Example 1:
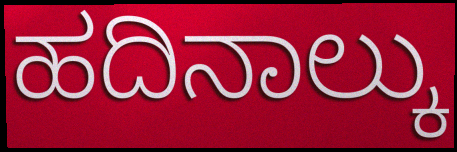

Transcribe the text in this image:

ಹದಿನಾಲ್ಕು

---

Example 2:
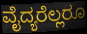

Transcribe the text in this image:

ವೈದ್ಯರೆಲ್ಲರೂ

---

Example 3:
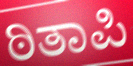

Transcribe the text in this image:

ಠಿತಾಪಿ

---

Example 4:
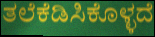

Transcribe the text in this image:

ತಲೆಕೆಡಿಸಿಕೊಳ್ಳದೆ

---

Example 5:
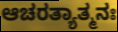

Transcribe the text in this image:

ಆಚರತ್ಯಾತ್ಮನಃ